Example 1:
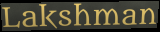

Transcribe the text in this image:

Lakshman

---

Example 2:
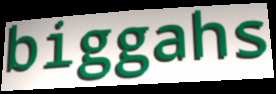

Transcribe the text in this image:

biggahs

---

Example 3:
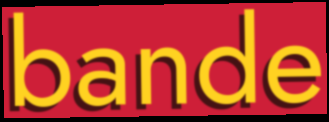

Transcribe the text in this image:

bande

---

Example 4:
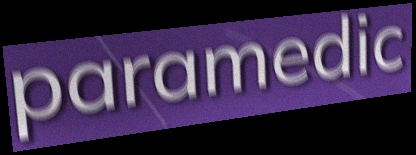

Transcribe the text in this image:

paramedic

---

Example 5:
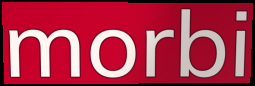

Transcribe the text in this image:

morbi